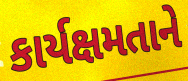
કાર્યક્ષમતાને